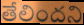
తేలిందని